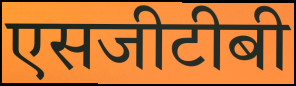
एसजीटीबी